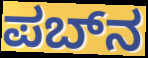
ಪಬ್‌ನ